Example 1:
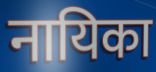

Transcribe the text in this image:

नायिका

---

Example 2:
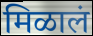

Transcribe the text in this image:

मिळालं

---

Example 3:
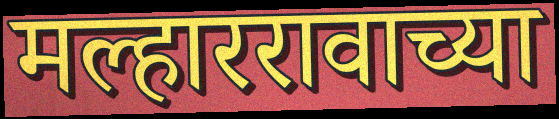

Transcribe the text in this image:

मल्हाररावाच्या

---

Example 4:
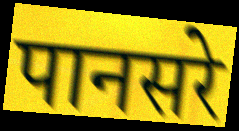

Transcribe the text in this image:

पानसरे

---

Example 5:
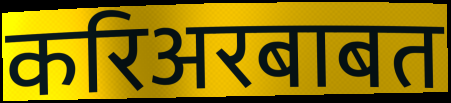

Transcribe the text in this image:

करिअरबाबत